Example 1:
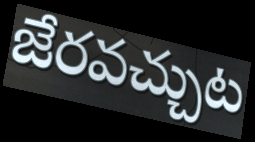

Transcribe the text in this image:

జేరవచ్చుట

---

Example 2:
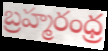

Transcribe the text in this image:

బ్రహ్మరంధ్ర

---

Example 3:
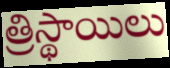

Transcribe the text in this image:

త్రిస్థాయిలు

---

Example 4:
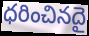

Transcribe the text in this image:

ధరించినదై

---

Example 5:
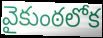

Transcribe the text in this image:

వైకుంఠలోక